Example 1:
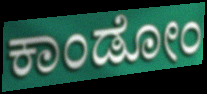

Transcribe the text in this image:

ಕಾಂಡೋಂ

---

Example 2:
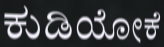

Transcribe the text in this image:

ಕುಡಿಯೋಕೆ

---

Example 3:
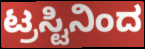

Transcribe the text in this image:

ಟ್ರಸ್ಟಿನಿಂದ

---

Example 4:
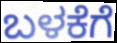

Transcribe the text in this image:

ಬಳಕೆಗೆ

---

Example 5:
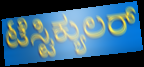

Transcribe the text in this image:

ಟೆಸ್ಟಿಕ್ಯುಲರ್